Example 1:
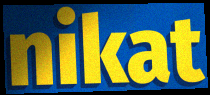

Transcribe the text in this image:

nikat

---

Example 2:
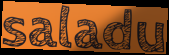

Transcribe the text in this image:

saladu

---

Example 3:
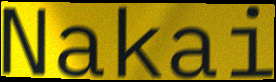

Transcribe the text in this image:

Nakai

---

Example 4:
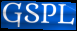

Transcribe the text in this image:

GSPL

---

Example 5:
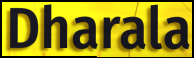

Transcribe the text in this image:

Dharala